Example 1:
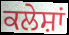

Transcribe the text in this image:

ਕਲੇਸ਼ਾਂ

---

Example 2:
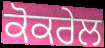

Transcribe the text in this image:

ਕੋਕਰੇਲ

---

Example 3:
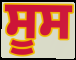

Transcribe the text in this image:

ਸੂਸ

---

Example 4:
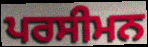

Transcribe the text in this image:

ਪਰਸੀਮਨ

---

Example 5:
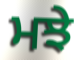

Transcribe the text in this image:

ਮਝੇ